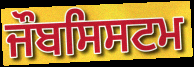
ਜੌਬਸਿਸਟਮ